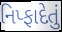
નિપ્ફાદેતું